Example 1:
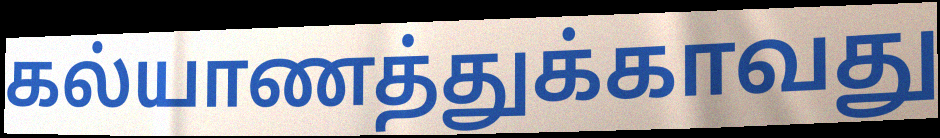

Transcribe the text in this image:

கல்யாணத்துக்காவது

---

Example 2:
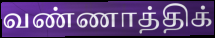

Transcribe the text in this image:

வண்ணாத்திக்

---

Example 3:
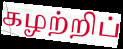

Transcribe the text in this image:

கழற்றிப்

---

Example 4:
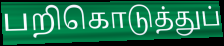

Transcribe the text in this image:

பறிகொடுத்துப்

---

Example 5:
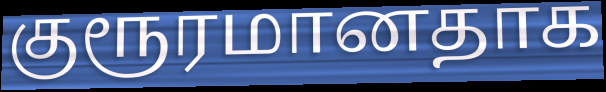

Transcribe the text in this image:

குரூரமானதாக